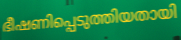
ഭീഷണിപ്പെടുത്തിയതായി